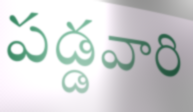
పడ్డవారి